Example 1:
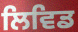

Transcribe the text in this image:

ਲਿਵਿਡ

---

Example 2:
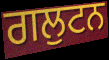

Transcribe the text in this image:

ਗਲੁਟਨ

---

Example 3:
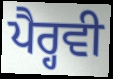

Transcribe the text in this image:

ਪੈਰ੍ਹਵੀ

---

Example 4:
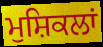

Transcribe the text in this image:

ਮੁਸ਼ਿਕਲਾਂ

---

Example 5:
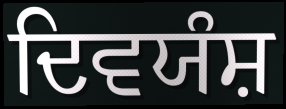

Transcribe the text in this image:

ਦਿਵਯੰਸ਼